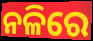
ନଳିରେ